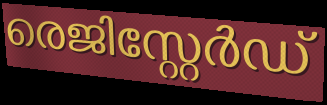
രെജിസ്റ്റേർഡ്